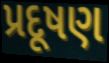
પ્રદૂષણ